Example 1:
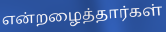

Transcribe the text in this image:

என்றழைத்தார்கள்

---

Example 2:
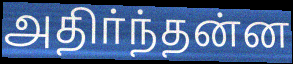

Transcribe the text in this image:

அதிர்ந்தன்ன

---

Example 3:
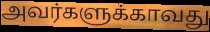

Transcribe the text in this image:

அவர்களுக்காவது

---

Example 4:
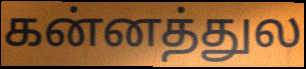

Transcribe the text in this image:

கன்னத்துல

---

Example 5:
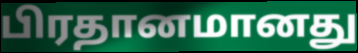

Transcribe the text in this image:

பிரதானமானது